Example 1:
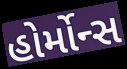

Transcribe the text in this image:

હોર્મોન્સ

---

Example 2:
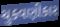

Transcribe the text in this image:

ચુકવણીકાર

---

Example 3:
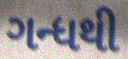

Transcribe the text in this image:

ગન્ધથી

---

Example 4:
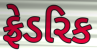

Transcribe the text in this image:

ફ્રેડરિક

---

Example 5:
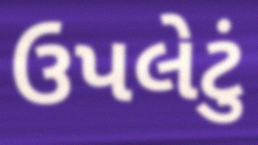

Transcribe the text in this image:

ઉપલેટું